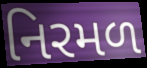
નિરમળ